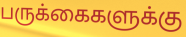
பருக்கைகளுக்கு